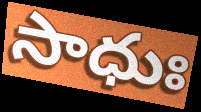
సాధుః